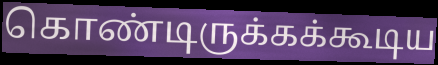
கொண்டிருக்கக்கூடிய